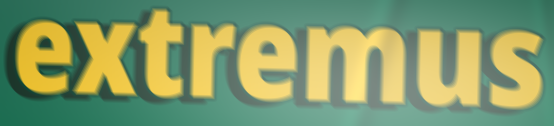
extremus